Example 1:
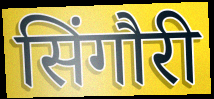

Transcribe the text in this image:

सिंगौरी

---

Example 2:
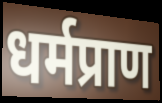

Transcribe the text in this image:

धर्मप्राण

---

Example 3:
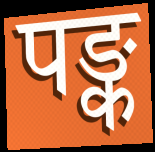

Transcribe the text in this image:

पङ्क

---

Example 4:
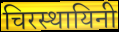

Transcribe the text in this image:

चिरस्थायिनी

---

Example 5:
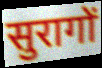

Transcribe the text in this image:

सुरागों